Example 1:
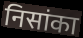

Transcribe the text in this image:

निसांका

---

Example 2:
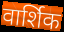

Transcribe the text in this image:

वार्शिक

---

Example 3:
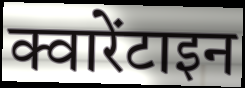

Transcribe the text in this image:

क्वारेंटाइन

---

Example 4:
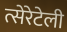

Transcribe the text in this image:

त्सेरेटेली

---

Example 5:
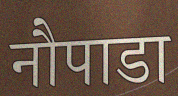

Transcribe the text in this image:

नौपाडा